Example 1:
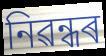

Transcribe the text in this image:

নিৱন্ধৰ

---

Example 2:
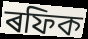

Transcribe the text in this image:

ৰফিক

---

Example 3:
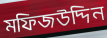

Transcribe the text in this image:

মফিজউদ্দিন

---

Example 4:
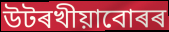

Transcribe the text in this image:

উটৰখীয়াবোৰৰ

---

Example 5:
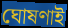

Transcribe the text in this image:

ঘোষণাই